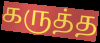
கருத்த